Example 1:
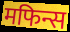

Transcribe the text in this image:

मफिन्स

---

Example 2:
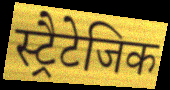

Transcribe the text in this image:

स्ट्रैटेजिक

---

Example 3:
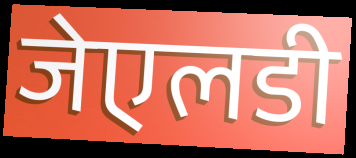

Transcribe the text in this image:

जेएलडी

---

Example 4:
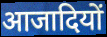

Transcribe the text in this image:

आजादियों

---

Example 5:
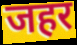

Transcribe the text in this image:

जहर